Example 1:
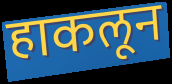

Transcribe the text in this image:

हाकलून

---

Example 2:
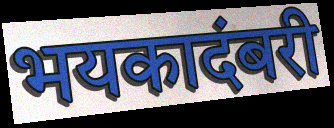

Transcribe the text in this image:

भयकादंबरी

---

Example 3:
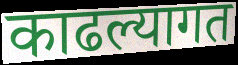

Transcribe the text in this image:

काढल्यागत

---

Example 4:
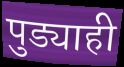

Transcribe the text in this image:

पुड्याही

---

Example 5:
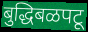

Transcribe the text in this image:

बुद्धिबळपटू